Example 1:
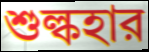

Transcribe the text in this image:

শুল্কহার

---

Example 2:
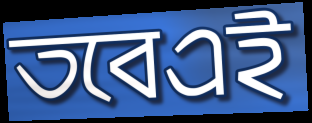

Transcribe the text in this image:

তবেএই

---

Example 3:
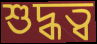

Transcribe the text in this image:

শুদ্ধত্ব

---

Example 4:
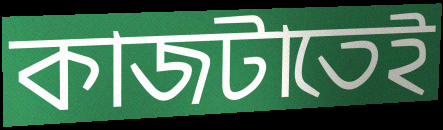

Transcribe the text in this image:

কাজটাতেই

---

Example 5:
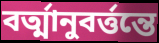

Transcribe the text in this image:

বর্ত্মানুবর্ত্তন্তে